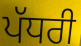
ਪੱਧਰੀ